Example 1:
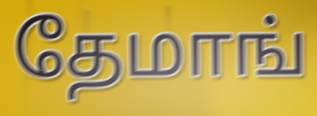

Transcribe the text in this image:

தேமாங்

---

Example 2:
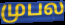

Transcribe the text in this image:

முபல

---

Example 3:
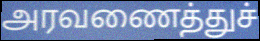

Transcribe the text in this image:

அரவணைத்துச்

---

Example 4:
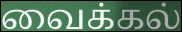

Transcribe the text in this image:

வைக்கல்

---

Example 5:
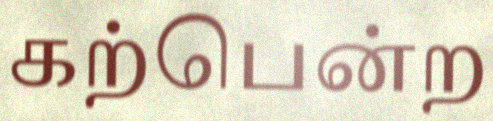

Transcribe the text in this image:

கற்பென்ற